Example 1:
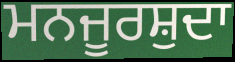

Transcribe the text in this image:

ਮਨਜੂਰਸ਼ੁਦਾ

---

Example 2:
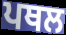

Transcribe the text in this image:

ਪਥਲ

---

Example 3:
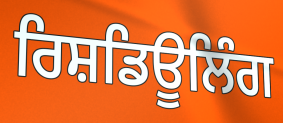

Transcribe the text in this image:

ਰਿਸ਼ਡਿਊਲਿੰਗ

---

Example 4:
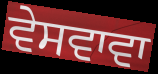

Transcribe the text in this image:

ਵੇਸਵਾਵਾ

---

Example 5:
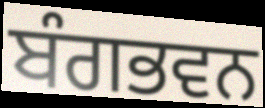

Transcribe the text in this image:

ਬੰਗਭਵਨ